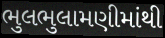
ભુલભુલામણીમાંથી